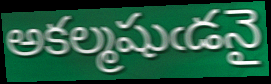
అకల్మషుఁడనై